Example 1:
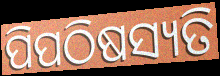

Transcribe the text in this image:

ପିପଠିଷସ୍ଯତି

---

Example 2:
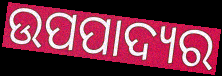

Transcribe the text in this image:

ଉପପାଦ୍ୟର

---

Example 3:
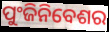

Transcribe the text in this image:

ପୁଂଜିନିବେଶର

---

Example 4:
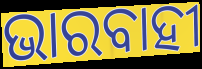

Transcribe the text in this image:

ଭାରବାହୀ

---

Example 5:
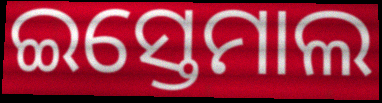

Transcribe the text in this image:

ଇସ୍ତେମାଲ